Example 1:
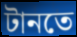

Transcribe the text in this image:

টানতে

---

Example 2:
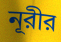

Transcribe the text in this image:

নূরীর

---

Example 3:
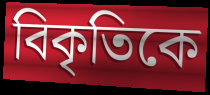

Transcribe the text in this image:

বিকৃতিকে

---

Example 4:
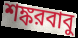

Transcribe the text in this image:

শঙ্করবাবু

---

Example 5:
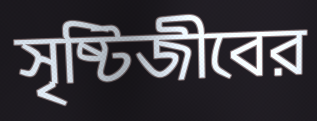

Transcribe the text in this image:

সৃষ্টিজীবের